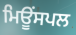
ਮਿਊਂਸਪਲ